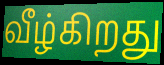
வீழ்கிறது